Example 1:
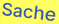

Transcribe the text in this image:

Sache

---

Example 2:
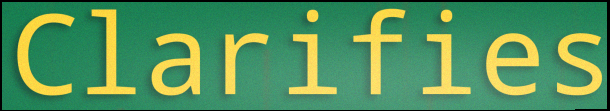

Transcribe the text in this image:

Clarifies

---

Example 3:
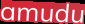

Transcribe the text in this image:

amudu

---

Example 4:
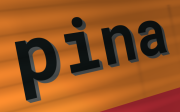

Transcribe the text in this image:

pina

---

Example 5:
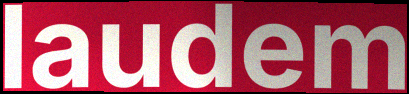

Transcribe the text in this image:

laudem